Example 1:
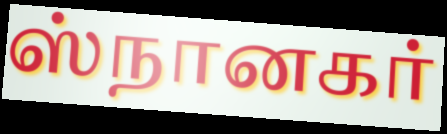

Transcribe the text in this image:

ஸ்நானகர்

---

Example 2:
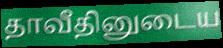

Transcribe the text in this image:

தாவீதினுடைய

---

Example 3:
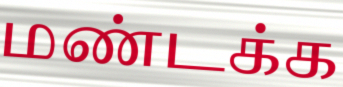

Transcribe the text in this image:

மண்டக்க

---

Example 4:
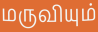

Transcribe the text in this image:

மருவியும்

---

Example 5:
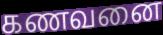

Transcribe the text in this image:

கணவனை